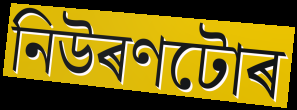
নিউৰণটোৰ